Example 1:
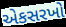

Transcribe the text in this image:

એકસરખો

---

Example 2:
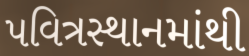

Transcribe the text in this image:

પવિત્રસ્થાનમાંથી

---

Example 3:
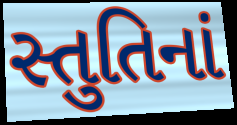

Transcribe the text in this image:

સ્તુતિનાં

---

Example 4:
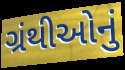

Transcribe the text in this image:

ગ્રંથીઓનું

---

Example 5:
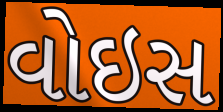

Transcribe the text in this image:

વોઇસ